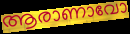
ആരാണാവോ